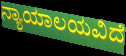
ನ್ಯಾಯಾಲಯವಿದೆ